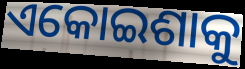
ଏକୋଇଶାକୁ